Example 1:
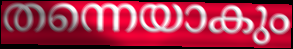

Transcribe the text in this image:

തന്നെയാകും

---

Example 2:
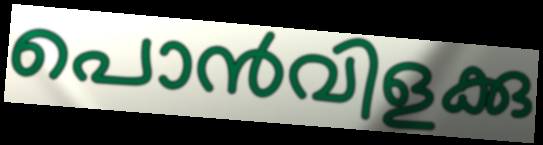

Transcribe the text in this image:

പൊൻവിളക്കു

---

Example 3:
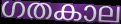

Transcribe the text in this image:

ഗതകാല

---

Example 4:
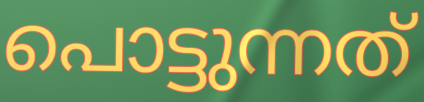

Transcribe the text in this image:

പൊട്ടുന്നത്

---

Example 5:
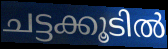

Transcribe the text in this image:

ചട്ടക്കൂടിൽ